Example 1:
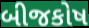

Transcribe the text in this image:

બીજકોષ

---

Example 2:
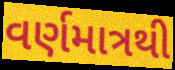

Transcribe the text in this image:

વર્ણમાત્રથી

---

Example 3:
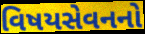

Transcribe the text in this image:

વિષયસેવનનો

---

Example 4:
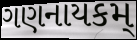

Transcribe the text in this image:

ગણનાયકમ્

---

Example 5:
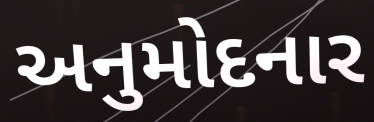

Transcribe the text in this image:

અનુમોદનાર